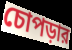
চোপড়ার